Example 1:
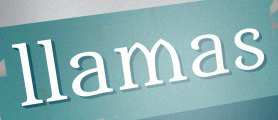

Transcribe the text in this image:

llamas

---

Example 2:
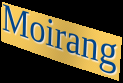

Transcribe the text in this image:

Moirang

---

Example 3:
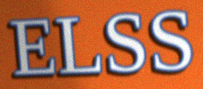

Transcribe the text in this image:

ELSS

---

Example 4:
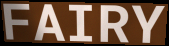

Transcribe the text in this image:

FAIRY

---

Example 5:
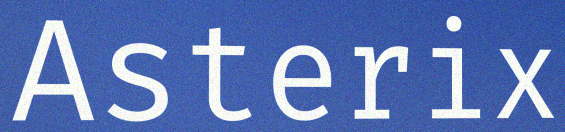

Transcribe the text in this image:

Asterix